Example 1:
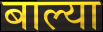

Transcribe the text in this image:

बाल्या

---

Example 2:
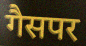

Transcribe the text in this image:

गैसपर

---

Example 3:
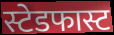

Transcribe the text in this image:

स्टेडफास्ट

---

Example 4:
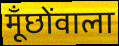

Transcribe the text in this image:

मूँछोंवाला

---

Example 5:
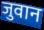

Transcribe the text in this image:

जुवान